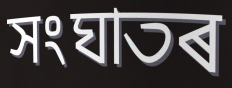
সংঘাতৰ